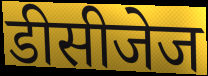
डीसीजेज